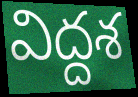
విద్దశ